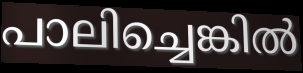
പാലിച്ചെങ്കിൽ